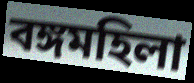
বঙ্গমহিলা